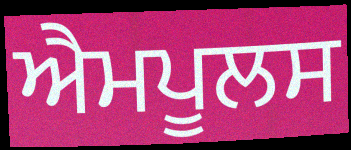
ਐਮਪੂਲਸ